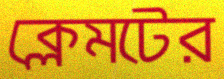
ক্লেমটের